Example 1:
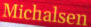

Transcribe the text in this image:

Michalsen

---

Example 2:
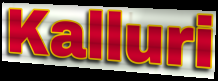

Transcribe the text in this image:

Kalluri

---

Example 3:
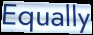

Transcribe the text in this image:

Equally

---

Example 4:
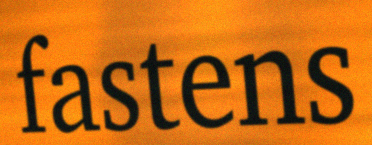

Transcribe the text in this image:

fastens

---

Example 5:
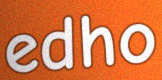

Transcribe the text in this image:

edho